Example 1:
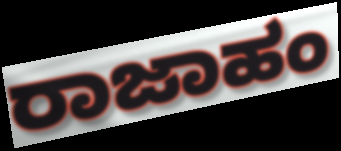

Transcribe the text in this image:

ರಾಜಾಹಂ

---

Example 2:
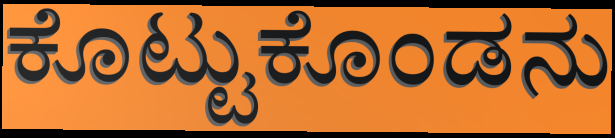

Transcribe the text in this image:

ಕೊಟ್ಟುಕೊಂಡನು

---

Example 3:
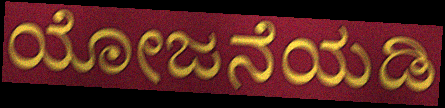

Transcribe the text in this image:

ಯೋಜನೆಯಡಿ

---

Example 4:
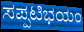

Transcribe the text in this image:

ಸಪ್ಪಟಿಭಯಂ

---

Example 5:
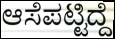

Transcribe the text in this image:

ಆಸೆಪಟ್ಟಿದ್ದೆ